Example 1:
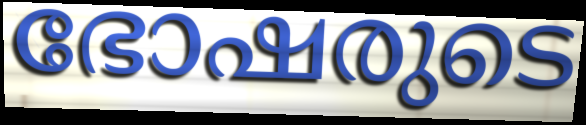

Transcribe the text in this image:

ഭോഷരുടെ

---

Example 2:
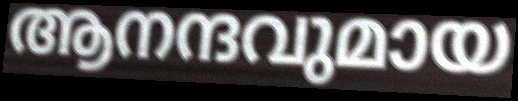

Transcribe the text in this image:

ആനന്ദവുമായ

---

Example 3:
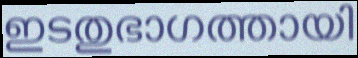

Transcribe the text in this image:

ഇടതുഭാഗത്തായി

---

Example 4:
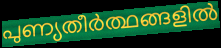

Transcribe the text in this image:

പുണ്യതീർത്ഥങ്ങളിൽ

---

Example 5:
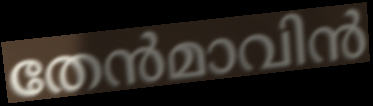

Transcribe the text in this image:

തേൻമാവിൻ